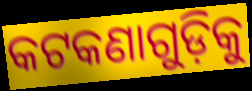
କଟକଣାଗୁଡ଼ିକୁ